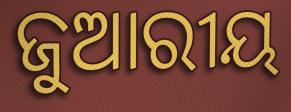
ଜୁଆରୀୟ